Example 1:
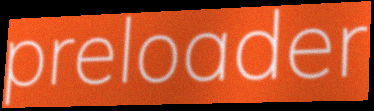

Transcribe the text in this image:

preloader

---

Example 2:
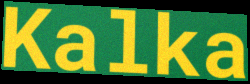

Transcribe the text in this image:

Kalka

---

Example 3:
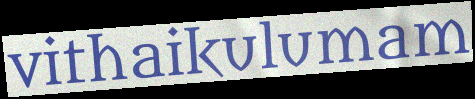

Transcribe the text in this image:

vithaikulumam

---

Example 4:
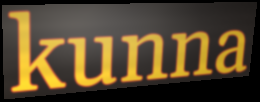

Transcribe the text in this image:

kunna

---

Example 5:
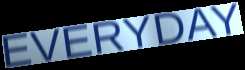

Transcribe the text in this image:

EVERYDAY